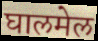
घालमेल